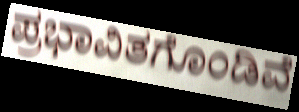
ಪ್ರಭಾವಿತಗೊಂಡಿವೆ